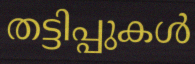
തട്ടിപ്പുകൾ